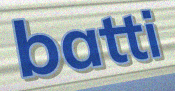
batti